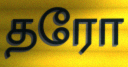
தரோ